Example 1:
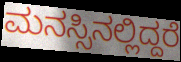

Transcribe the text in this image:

ಮನಸ್ಸಿನಲ್ಲಿದ್ದರೆ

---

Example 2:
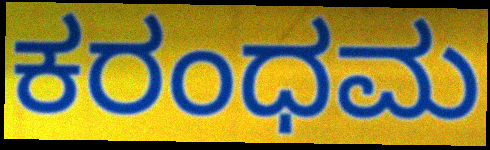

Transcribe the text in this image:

ಕರಂಧಮ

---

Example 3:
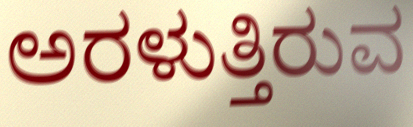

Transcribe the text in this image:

ಅರಳುತ್ತಿರುವ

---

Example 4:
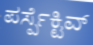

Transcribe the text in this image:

ಪರ್ಸ್ಪೆಕ್ಟಿವ್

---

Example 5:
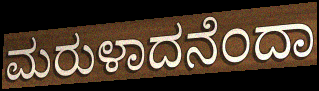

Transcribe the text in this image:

ಮರುಳಾದನೆಂದಾ